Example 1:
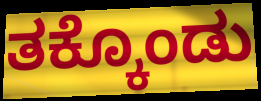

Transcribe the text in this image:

ತಕ್ಕೊಂಡು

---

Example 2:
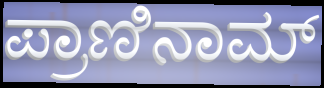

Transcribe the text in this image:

ಪ್ರಾಣಿನಾಮ್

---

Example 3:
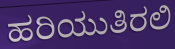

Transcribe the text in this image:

ಹರಿಯುತಿರಲಿ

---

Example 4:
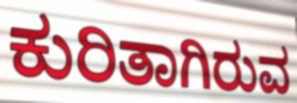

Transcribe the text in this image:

ಕುರಿತಾಗಿರುವ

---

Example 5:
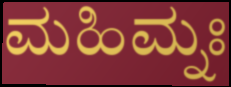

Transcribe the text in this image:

ಮಹಿಮ್ನಃ